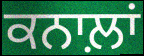
ਕਨਾਲ਼ਾਂ